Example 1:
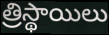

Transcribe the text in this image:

త్రిస్థాయిలు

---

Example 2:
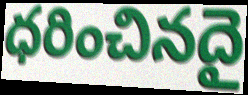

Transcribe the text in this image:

ధరించినదై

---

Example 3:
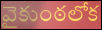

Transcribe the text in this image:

వైకుంఠలోక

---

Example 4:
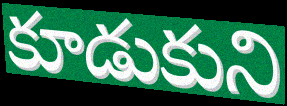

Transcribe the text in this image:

కూడుకుని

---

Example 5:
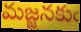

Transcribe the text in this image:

మజ్జనకుఁ